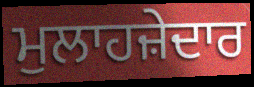
ਮੁਲਾਹਜ਼ੇਦਾਰ